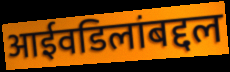
आईवडिलांबद्दल